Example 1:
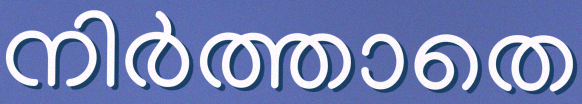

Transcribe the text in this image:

നിർത്താതെ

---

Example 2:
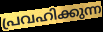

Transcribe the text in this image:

പ്രവഹിക്കുന്ന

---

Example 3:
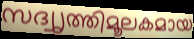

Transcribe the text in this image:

സദ്വൃത്തിമൂലകമായ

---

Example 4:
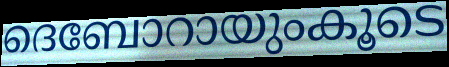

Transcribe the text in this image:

ദെബോറായുംകൂടെ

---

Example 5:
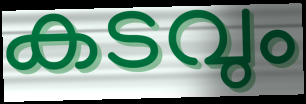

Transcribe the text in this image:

കടവും